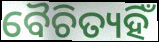
ବୈଚିତ୍ୟହିଁ